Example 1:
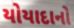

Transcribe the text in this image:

યોયાદાનો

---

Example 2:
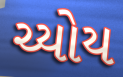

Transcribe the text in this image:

ચ્યોય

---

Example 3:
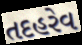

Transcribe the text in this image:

તદહરેવ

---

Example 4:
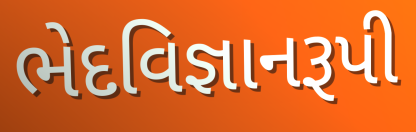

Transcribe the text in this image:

ભેદવિજ્ઞાનરૂપી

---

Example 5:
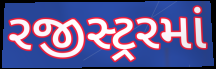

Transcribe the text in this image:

રજીસ્ટ્રરમાં